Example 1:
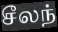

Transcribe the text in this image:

சீலந்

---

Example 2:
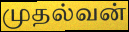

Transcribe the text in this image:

முதல்வன்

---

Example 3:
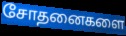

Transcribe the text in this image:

சோதனைகளை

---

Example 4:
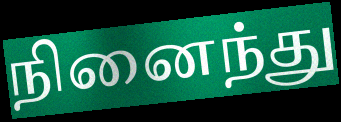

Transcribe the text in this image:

நினைந்து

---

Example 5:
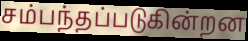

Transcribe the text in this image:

சம்பந்தப்படுகின்றன